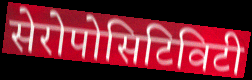
सेरोपोसिटिविटी